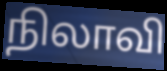
நிலாவி